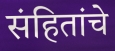
संहितांचे